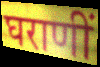
घराणीं